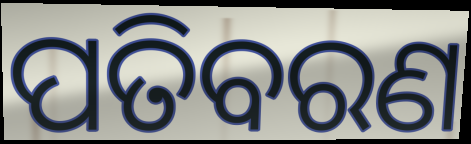
ପତିବରଣ